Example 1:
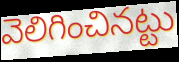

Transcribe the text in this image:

వెలిగించినట్టు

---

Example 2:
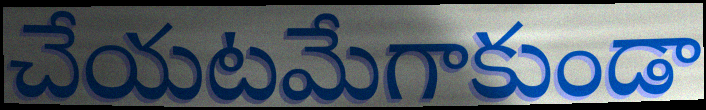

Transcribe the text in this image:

చేయటమేగాకుండా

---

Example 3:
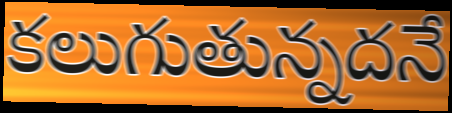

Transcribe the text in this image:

కలుగుతున్నదనే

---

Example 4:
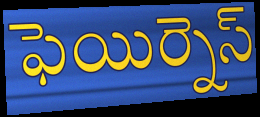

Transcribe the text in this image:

ఫెయిర్నెస్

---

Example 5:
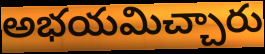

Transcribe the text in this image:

అభయమిచ్చారు